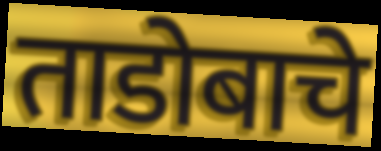
ताडोबाचे